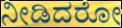
ನೀಡಿದರೋ